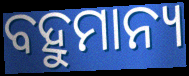
ବହୁମାନ୍ୟ